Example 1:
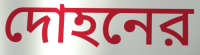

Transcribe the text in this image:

দোহনের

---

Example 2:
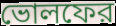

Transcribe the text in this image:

ভোলফের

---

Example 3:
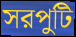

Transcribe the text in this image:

সরপুটি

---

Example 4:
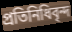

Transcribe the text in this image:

প্রতিনিধিবৃন্দ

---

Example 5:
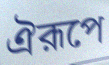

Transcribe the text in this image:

ঐরূপে